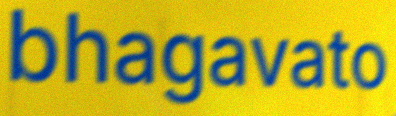
bhagavato